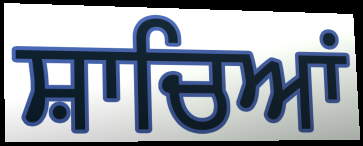
ਸ਼ਾਚਿਆਂ